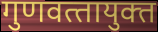
गुणवत्‍तायुक्‍त